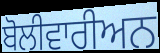
ਬੋਲੀਵਾਰੀਅਨ